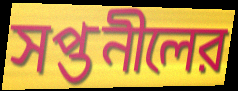
সপ্তনীলের